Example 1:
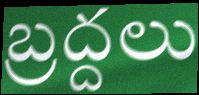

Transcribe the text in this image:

బ్రద్దలు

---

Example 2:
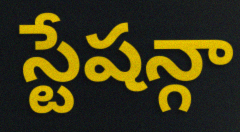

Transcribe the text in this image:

స్టేషన్గా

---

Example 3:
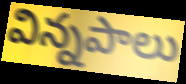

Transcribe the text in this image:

విన్నపాలు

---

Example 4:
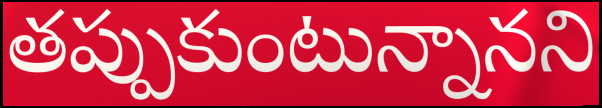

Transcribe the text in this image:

తప్పుకుంటున్నానని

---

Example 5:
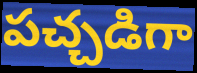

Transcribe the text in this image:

పచ్చడిగా